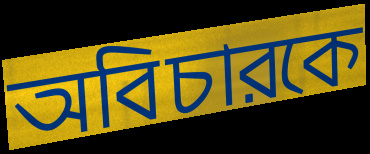
অবিচারকে